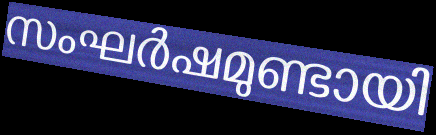
സംഘർഷമുണ്ടായി